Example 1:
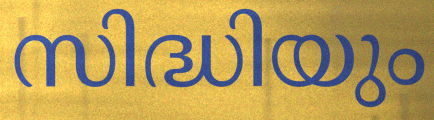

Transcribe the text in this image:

സിദ്ധിയും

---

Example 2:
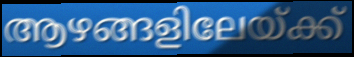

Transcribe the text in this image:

ആഴങ്ങളിലേയ്ക്ക്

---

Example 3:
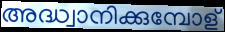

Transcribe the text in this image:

അദ്ധ്വാനിക്കുമ്പോള്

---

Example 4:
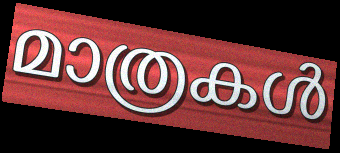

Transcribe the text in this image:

മാത്രകൾ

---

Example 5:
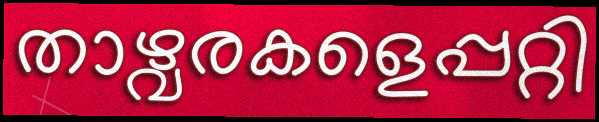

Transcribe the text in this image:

താഴ്വരകളെപ്പറ്റി